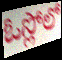
ఓస్లోలో